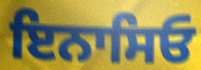
ਇਨਾਸਿਓ